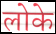
लोके